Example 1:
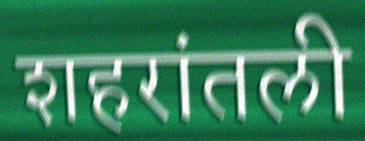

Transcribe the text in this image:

शहरांतली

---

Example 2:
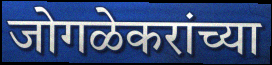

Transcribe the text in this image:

जोगळेकरांच्या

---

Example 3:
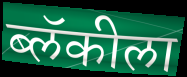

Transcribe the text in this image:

ब्लॅकीला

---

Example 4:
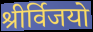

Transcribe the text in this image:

श्रीर्विजयो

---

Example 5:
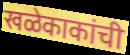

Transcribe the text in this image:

खळेकाकांची